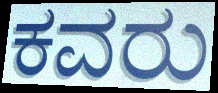
ಕವರು